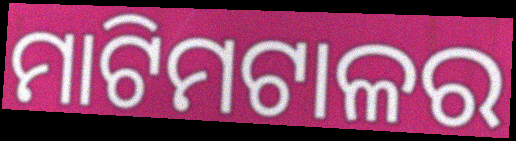
ମାଟିମଟାଳର